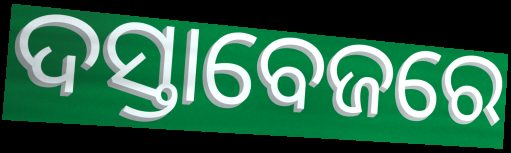
ଦସ୍ତାବେଜରେ